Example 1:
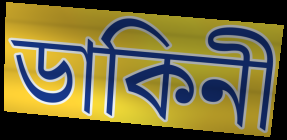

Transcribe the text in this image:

ডাকিনী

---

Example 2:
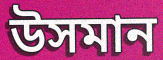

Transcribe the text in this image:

উসমান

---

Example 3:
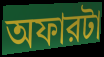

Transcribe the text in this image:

অফারটা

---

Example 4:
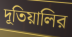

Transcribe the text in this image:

দূতিয়ালির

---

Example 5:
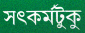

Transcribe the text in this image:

সৎকর্মটুকু